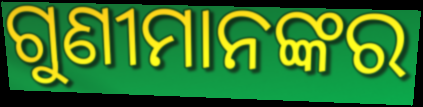
ଗୁଣୀମାନଙ୍କର